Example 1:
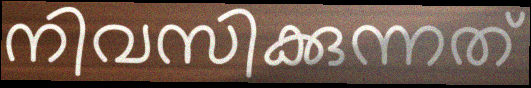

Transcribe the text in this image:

നിവസിക്കുന്നത്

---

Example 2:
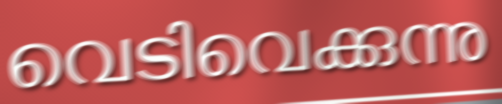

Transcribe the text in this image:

വെടിവെക്കുന്നു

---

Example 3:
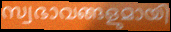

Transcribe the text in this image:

സ്വഭാവങ്ങളുമായി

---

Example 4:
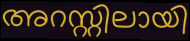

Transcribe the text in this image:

അറസ്റ്റിലായി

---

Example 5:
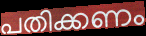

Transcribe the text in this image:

പതിക്കണം